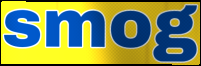
smog